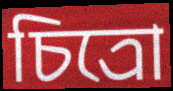
চিত্রো